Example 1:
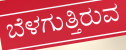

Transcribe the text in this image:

ಬೆಳಗುತ್ತಿರುವ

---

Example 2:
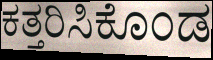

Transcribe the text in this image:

ಕತ್ತರಿಸಿಕೊಂಡ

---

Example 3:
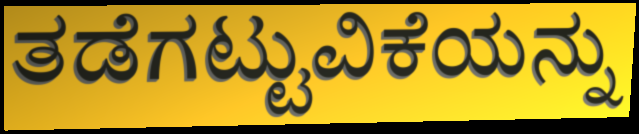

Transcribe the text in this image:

ತಡೆಗಟ್ಟುವಿಕೆಯನ್ನು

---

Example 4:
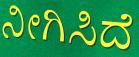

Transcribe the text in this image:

ನೀಗಿಸಿದೆ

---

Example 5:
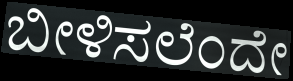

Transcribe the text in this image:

ಬೀಳಿಸಲೆಂದೇ